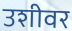
उशीवर